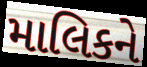
માલિકને